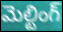
మెల్టింగ్